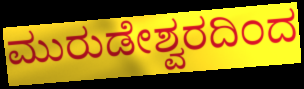
ಮುರುಡೇಶ್ವರದಿಂದ